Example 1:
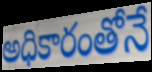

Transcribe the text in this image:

అధికారంతోనే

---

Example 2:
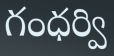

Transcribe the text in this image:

గంధర్వి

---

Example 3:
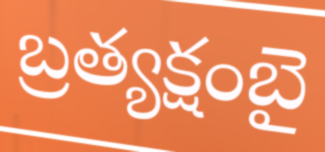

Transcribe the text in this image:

బ్రత్యక్షంబై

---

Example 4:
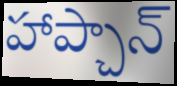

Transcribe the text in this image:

హాప్చాన్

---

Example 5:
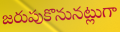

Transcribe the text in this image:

జరుపుకొనునట్లుగా